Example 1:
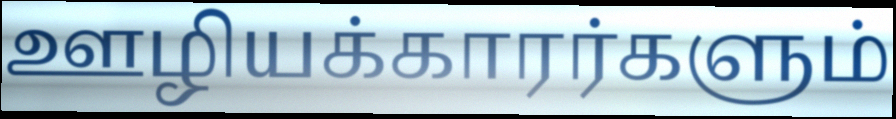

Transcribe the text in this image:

ஊழியக்காரர்களும்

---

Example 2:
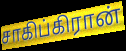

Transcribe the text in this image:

சாகிப்கிரான்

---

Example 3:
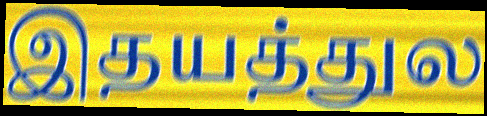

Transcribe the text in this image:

இதயத்துல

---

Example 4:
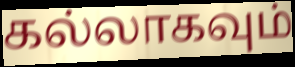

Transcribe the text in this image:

கல்லாகவும்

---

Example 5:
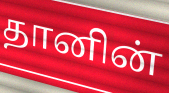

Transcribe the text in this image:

தானின்